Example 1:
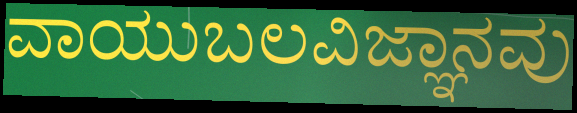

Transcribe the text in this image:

ವಾಯುಬಲವಿಜ್ಞಾನವು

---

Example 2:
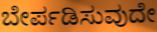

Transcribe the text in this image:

ಬೇರ್ಪಡಿಸುವುದೇ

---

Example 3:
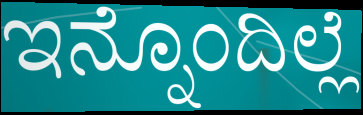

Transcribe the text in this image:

ಇನ್ನೊಂದಿಲ್ಲೆ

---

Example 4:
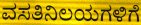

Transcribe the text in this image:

ವಸತಿನಿಲಯಗಳಿಗೆ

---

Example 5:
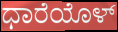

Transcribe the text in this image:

ಧಾರೆಯೊಳ್